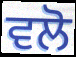
ਵਲੋ